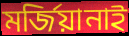
মৰ্জিয়ানাই